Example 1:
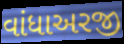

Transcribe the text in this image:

વાંધાઅરજી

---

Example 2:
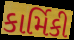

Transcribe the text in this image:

કાર્મિકી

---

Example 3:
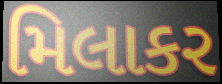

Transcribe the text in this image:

મિલાકર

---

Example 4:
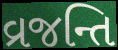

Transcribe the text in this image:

વ્રજન્તિ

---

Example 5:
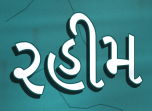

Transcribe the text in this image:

રહીમ